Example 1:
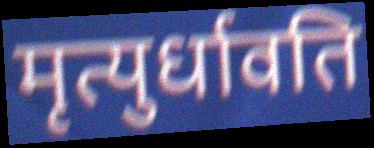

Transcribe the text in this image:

मृत्युर्धावति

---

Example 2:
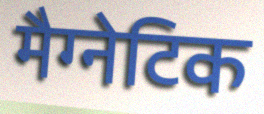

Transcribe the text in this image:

मैग्नेटिक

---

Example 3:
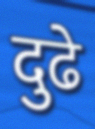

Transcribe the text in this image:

दुढे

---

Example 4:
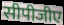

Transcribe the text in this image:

सीपीजीए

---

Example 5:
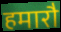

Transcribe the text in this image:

हमारौ